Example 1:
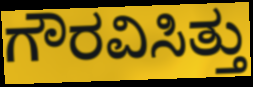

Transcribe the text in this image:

ಗೌರವಿಸಿತ್ತು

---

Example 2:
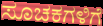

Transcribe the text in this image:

ಸೂಚಕಗಳಿಗೆ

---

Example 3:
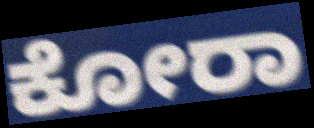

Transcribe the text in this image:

ಕೋರಾ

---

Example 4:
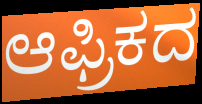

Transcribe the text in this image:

ಆಫ್ರಿಕದ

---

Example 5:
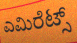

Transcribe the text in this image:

ಎಮಿರೆಟ್ಸ್